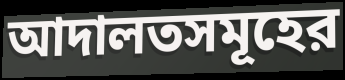
আদালতসমূহের